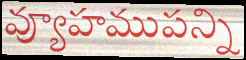
వ్యూహముపన్ని